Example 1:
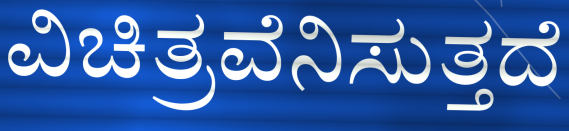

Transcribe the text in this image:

ವಿಚಿತ್ರವೆನಿಸುತ್ತದೆ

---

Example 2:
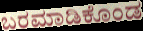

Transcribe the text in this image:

ಬರಮಾಡಿಕೊಂಡ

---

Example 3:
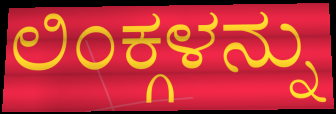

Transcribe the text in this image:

ಲಿಂಕ್ಗಳನ್ನು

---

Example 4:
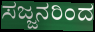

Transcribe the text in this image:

ಸಜ್ಜನರಿಂದ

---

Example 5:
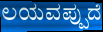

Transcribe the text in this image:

ಲಯವಪ್ಪುದೆ